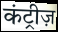
कंट्रीज़